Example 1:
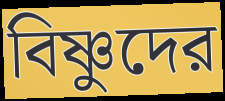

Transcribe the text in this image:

বিষ্ণুদের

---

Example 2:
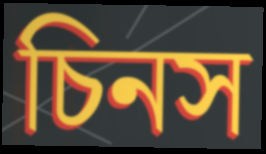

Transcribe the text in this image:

চিনস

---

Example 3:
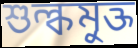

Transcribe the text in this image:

শুল্কমুক্ত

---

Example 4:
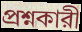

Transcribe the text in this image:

প্রশ্নকারী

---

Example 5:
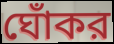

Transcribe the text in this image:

ঘোঁকর